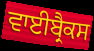
ਵਾਈਬ੍ਰੈਕਸ